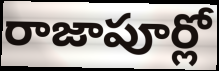
రాజాపూర్లో